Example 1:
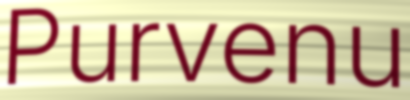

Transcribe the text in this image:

Purvenu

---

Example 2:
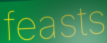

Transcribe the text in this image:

feasts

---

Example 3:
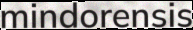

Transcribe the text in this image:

mindorensis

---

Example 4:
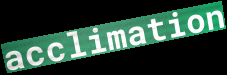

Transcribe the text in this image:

acclimation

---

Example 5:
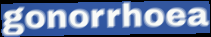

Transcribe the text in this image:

gonorrhoea